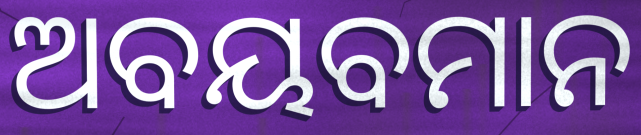
ଅବୟବମାନ